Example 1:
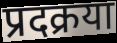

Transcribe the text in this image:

प्रदक्रया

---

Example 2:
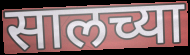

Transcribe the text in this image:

सालच्या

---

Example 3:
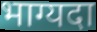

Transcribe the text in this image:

भाग्यदा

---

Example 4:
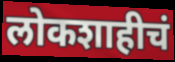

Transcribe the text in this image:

लोकशाहीचं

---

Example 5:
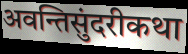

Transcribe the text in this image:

अवन्तिसुंदरीकथा